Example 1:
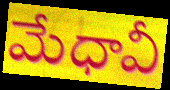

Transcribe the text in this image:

మేధావీ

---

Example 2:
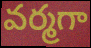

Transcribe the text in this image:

వర్మగా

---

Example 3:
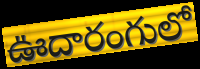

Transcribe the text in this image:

ఊదారంగులో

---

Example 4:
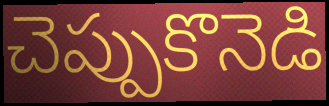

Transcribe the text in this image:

చెప్పుకొనెడి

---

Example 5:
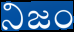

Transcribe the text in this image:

నిజం